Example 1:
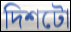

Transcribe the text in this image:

দিশটো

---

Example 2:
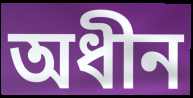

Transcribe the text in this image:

অধীন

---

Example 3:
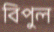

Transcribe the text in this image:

বিপুল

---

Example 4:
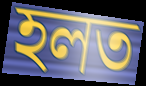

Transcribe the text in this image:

হলত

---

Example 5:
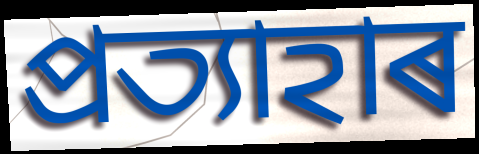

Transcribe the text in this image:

প্ৰত্যাহাৰ